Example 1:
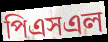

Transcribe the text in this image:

পিএসএল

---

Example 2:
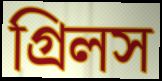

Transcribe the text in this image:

গ্রিলস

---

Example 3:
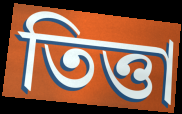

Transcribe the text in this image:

তিত্তা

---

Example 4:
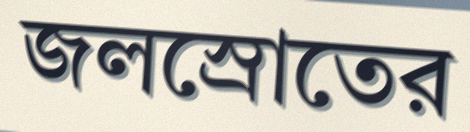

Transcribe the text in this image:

জলস্রোতের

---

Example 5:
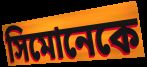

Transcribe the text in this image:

সিমোনেকে